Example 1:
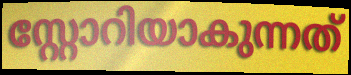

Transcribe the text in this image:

സ്റ്റോറിയാകുന്നത്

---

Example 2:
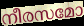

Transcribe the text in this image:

നീരസമോ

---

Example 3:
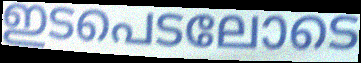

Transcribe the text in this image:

ഇടപെടലോടെ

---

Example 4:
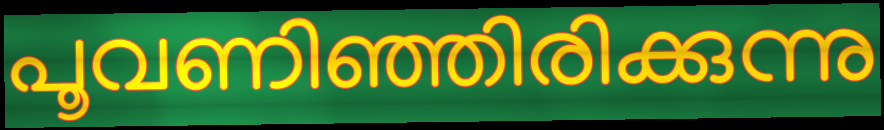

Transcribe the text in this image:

പൂവണിഞ്ഞിരിക്കുന്നു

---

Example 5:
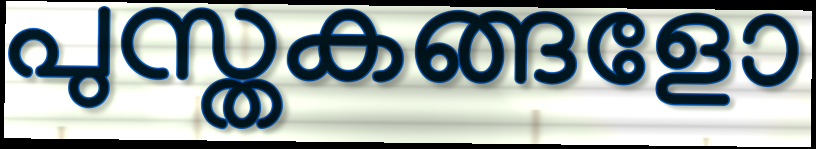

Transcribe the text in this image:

പുസ്തകങ്ങളോ